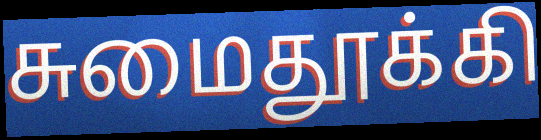
சுமைதூக்கி